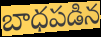
బాధపడిన